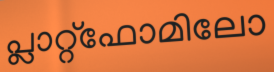
പ്ലാറ്റ്ഫോമിലോ